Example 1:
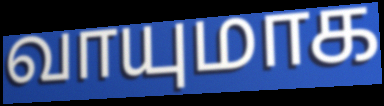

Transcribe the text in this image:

வாயுமாக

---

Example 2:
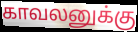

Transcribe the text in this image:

காவலனுக்கு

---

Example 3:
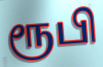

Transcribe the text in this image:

ரூபி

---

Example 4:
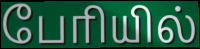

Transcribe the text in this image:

பேரியில்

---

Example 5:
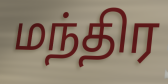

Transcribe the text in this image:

மந்திர